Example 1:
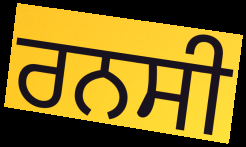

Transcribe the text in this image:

ਰਨਸੀ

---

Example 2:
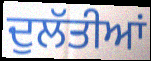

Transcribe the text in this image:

ਦੁਲੱਤੀਆਂ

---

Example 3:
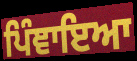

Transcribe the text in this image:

ਪਿੰਞਾਇਆ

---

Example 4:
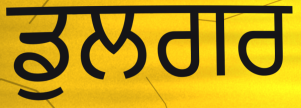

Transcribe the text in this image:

ਡੁਲਗਰ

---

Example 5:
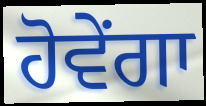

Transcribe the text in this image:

ਹੋਵੇਂਗਾ